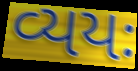
વ્યયઃ